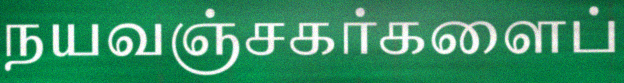
நயவஞ்சகர்களைப்